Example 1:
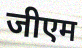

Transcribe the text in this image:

जीएम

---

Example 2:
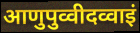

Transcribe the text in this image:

आणुपुव्वीदव्वाइं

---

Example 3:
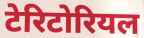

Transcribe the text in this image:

टेरिटोरियल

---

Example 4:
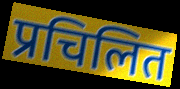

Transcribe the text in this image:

प्रचिलित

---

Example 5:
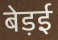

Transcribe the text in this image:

बेड़ई